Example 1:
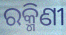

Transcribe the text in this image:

ରକ୍ମିଣୀ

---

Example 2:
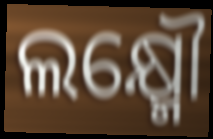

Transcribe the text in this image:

ଲକ୍ଷ୍ମୌ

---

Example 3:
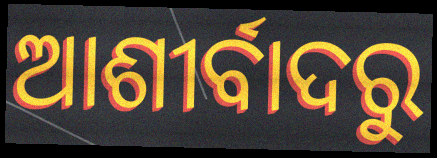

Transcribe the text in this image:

ଆଶୀର୍ବାଦରୁ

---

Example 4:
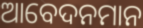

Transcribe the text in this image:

ଆବେଦନମାନ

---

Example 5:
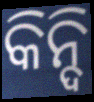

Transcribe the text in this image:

କିନ୍ଦି